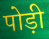
पोड़ी